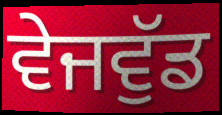
ਵੇਜਵੁੱਡ